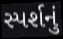
સ્પર્શનું